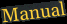
Manual